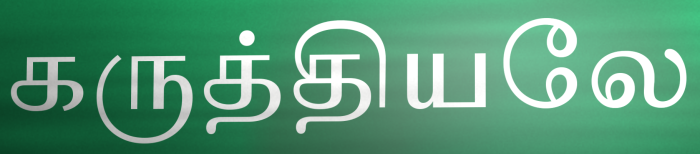
கருத்தியலே